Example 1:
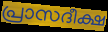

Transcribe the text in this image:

പ്രാസദീക്ഷ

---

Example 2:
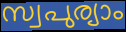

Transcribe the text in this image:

സ്വപുര്യാം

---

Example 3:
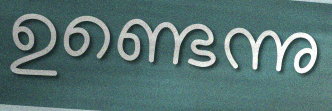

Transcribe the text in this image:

ഉണ്ടെന്നു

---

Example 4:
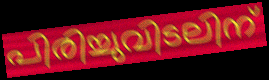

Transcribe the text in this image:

പിരിച്ചുവിടലിന്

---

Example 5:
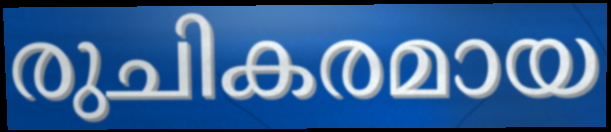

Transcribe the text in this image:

രുചികരമായ